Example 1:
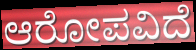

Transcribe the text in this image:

ಆರೋಪವಿದೆ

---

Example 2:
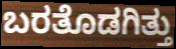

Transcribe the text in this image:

ಬರತೊಡಗಿತ್ತು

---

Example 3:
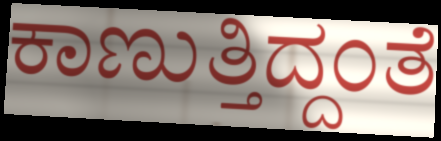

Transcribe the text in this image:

ಕಾಣುತ್ತಿದ್ದಂತೆ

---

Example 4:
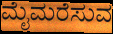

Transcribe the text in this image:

ಮೈಮರೆಸುವ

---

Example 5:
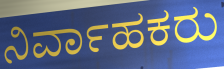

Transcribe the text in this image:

ನಿರ್ವಾಹಕರು